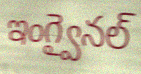
ఇంగ్వైనల్